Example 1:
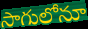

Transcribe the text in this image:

సాగులోనూ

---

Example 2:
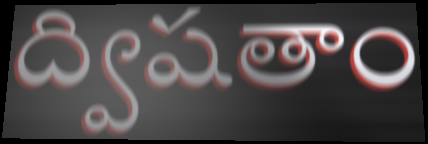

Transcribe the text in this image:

ద్విషతాం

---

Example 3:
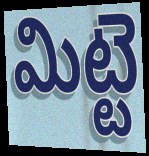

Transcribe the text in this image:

మిట్టె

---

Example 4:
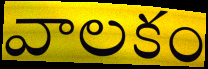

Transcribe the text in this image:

వాలకం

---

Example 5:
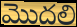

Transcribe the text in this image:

మొదలి